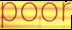
poor